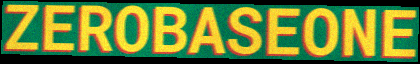
ZEROBASEONE